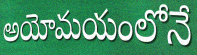
అయోమయంలోనే